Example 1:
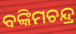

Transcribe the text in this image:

ବଙ୍କିମଚନ୍ଦ୍ର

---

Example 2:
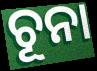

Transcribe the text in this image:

ଚୂନା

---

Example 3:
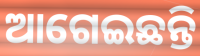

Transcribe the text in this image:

ଆଗେଇଛନ୍ତି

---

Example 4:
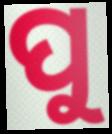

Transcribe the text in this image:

ପୁ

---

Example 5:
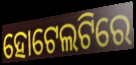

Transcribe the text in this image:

ହୋଟେଲଟିରେ